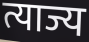
त्याज्य